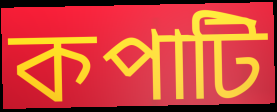
কপাটি